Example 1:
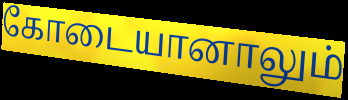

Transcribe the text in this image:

கோடையானாலும்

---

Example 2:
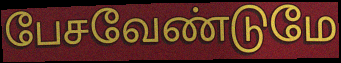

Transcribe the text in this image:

பேசவேண்டுமே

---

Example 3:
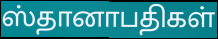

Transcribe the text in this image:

ஸ்தானாபதிகள்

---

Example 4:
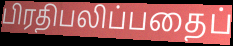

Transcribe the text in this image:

பிரதிபலிப்பதைப்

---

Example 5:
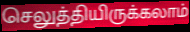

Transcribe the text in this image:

செலுத்தியிருக்கலாம்